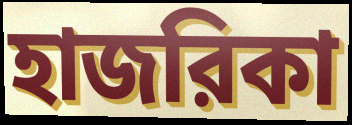
হাজরিকা